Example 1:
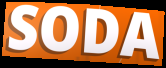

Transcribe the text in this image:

SODA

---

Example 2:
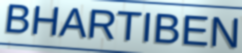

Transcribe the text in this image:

BHARTIBEN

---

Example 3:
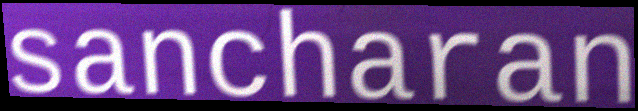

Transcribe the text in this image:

sancharan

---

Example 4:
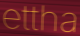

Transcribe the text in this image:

ettha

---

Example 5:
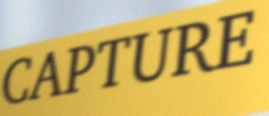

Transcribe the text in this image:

CAPTURE